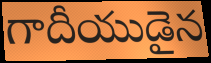
గాదీయుడైన